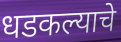
धडकल्याचे